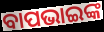
ବାପଭାଇଙ୍କ